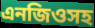
এনজিওসহ